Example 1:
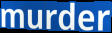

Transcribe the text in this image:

murder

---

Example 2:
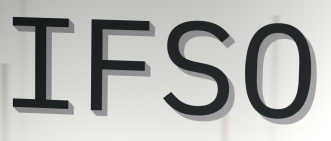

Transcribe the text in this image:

IFSO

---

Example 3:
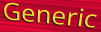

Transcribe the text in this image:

Generic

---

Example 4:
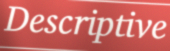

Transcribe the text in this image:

Descriptive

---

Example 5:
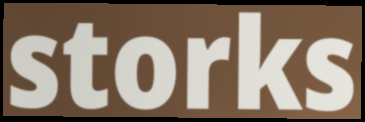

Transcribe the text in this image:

storks